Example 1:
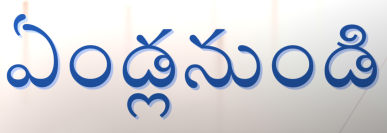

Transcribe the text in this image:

ఏండ్లనుండి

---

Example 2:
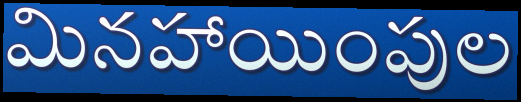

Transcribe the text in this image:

మినహాయింపుల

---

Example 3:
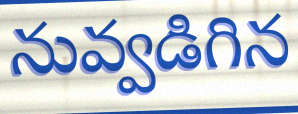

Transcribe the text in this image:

నువ్వడిగిన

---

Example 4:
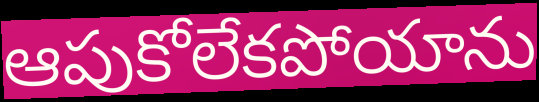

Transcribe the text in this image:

ఆపుకోలేకపోయాను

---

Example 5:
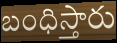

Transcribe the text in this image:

బంధిస్తారు